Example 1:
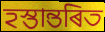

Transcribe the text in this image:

হস্তান্তৰিত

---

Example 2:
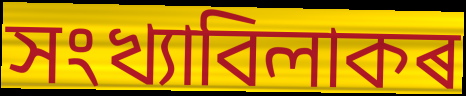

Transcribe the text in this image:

সংখ্যাবিলাকৰ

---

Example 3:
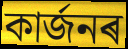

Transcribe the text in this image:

কাৰ্জনৰ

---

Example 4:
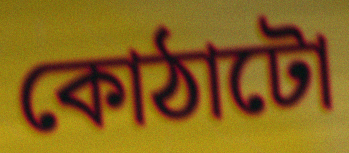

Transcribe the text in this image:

কোঠাটো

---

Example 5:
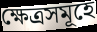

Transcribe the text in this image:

ক্ষেত্ৰসমূহে